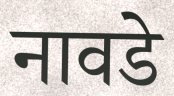
नावडे